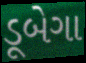
ડૂબેગા